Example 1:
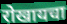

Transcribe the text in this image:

रोखायचा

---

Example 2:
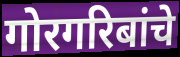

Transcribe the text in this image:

गोरगरिबांचे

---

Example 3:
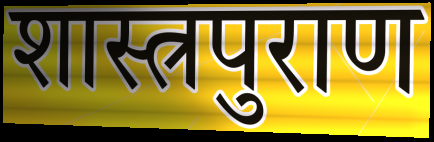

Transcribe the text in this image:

शास्त्रपुराण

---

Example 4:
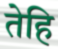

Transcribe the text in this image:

तेहि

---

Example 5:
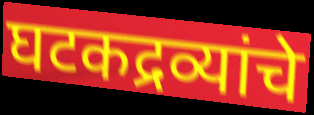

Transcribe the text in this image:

घटकद्रव्यांचे